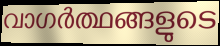
വാഗർത്ഥങ്ങളുടെ